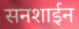
सनशाईन